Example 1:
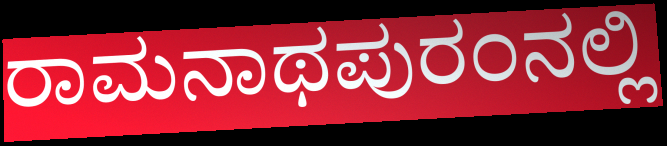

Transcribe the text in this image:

ರಾಮನಾಥಪುರಂನಲ್ಲಿ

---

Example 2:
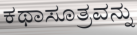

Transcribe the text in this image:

ಕಥಾಸೂತ್ರವನ್ನು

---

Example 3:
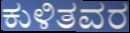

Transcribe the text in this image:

ಕುಳಿತವರ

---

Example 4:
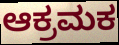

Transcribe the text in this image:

ಆಕ್ರಮಕ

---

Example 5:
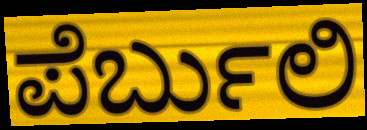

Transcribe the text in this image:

ಪೆರ್ಬುಲಿ